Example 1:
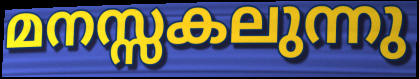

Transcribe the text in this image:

മനസ്സകലുന്നു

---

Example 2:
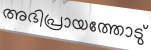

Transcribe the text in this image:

അഭിപ്രായത്തോടു്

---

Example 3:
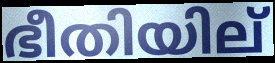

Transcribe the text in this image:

ഭീതിയില്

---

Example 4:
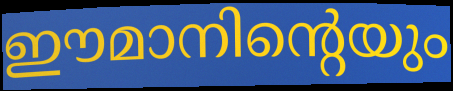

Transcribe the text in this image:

ഈമാനിന്റെയും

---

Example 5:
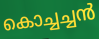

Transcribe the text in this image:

കൊച്ചച്ചൻ